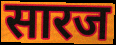
सारज